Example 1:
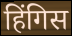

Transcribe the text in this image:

हिंगिस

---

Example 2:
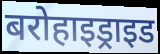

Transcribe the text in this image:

बरोहाइड्राइड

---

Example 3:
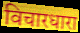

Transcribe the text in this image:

विचारधारा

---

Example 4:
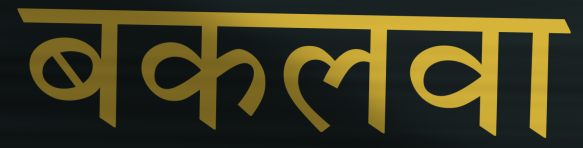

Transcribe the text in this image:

बकलवा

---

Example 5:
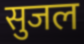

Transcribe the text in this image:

सुजल